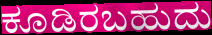
ಕೂಡಿರಬಹುದು